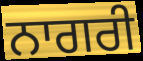
ਨਾਗਰੀ